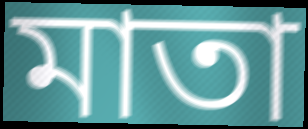
মাতা